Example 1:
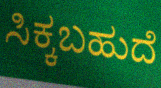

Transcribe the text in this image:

ಸಿಕ್ಕಬಹುದೆ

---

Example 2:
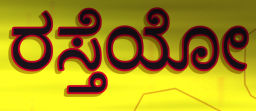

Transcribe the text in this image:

ರಸ್ತೆಯೋ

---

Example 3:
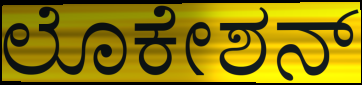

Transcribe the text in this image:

ಲೊಕೇಶನ್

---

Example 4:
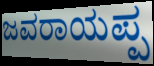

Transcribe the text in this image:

ಜವರಾಯಪ್ಪ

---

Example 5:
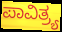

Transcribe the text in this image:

ಪಾವಿತ್ರ್ಯ